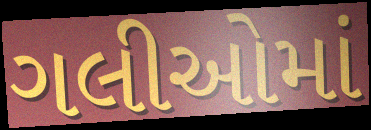
ગલીઓમાં